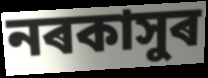
নৰকাসুৰ